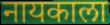
नायकाला